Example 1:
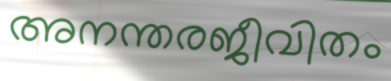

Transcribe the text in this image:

അനന്തരജീവിതം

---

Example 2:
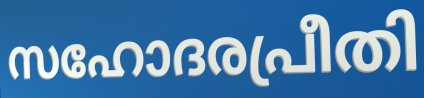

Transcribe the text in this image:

സഹോദരപ്രീതി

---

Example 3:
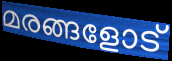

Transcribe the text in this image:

മരങ്ങളോട്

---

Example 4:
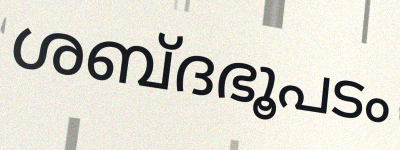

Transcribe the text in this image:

ശബ്ദഭൂപടം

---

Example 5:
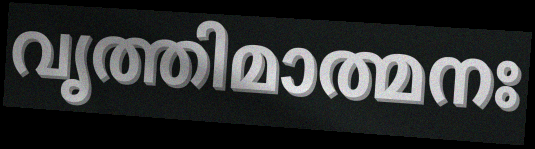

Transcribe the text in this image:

വൃത്തിമാത്മനഃ